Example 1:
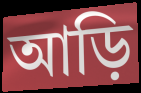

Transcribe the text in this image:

আড়ি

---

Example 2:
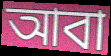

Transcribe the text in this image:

আবা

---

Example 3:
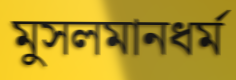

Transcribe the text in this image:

মুসলমানধর্ম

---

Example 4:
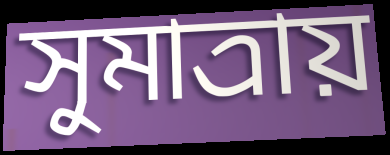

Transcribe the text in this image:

সুমাত্রায়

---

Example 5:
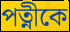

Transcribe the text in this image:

পত্নীকে